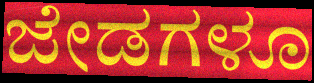
ಜೇಡಗಳೂ